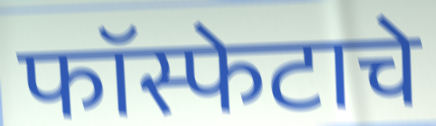
फॉस्फेटाचे